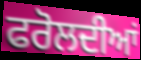
ਫਰੋਲਦੀਆਂ